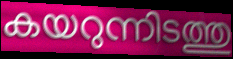
കയറുന്നിടത്തു